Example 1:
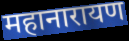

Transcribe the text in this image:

महानारायण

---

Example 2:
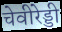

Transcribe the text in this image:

चेवीरेड्डी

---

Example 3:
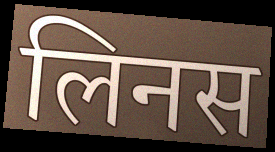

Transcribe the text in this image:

लिनस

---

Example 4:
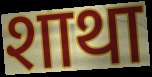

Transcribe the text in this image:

शाथा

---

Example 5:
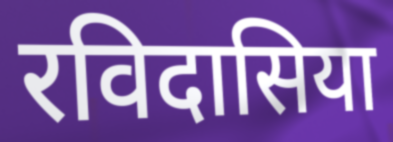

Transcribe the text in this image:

रविदासिया